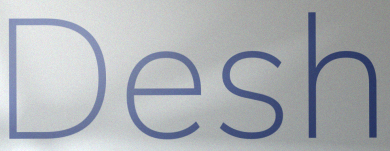
Desh